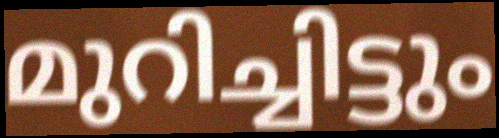
മുറിച്ചിട്ടും